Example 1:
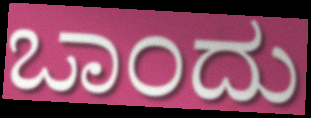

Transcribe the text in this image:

ಒಾಂದು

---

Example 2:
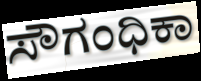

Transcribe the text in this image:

ಸೌಗಂಧಿಕಾ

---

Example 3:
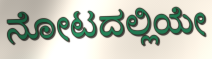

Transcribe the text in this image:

ನೋಟದಲ್ಲಿಯೇ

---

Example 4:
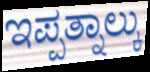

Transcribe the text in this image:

ಇಪ್ಪತ್ನಾಲ್ಕು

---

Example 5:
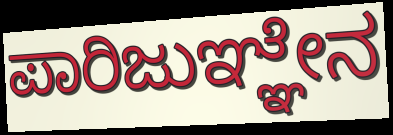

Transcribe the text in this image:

ಪಾರಿಜುಞ್ಞೇನ